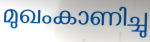
മുഖംകാണിച്ചു